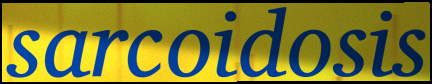
sarcoidosis